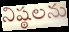
నిష్ఠలను